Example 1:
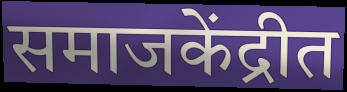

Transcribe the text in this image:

समाजकेंद्रीत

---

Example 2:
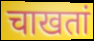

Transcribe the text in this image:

चाखतां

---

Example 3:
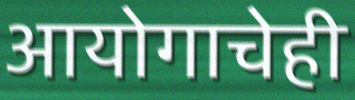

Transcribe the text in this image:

आयोगाचेही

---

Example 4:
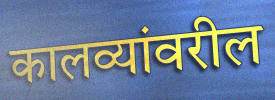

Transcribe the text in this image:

कालव्यांवरील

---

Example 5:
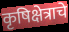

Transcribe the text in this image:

कृषिक्षेत्राचे